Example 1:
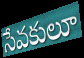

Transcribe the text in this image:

సేవకులూ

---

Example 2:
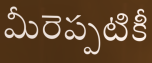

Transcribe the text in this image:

మీరెప్పటికీ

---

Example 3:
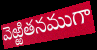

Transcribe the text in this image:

వెఱ్ఱితనముగా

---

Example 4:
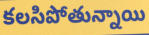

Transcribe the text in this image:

కలసిపోతున్నాయి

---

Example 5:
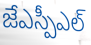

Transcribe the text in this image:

జేఎస్పీఎల్